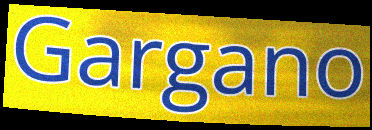
Gargano